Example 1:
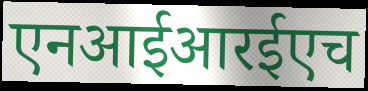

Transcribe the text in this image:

एनआईआरईएच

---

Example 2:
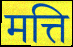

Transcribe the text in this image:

मत्ति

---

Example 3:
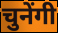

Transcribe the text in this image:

चुनेंगी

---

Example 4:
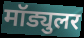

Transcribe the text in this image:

मॉड्युलर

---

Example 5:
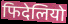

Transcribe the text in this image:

फिदेलियो